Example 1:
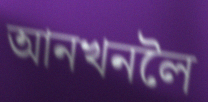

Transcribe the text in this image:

আনখনলৈ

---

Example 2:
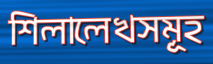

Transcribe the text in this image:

শিলালেখসমূহ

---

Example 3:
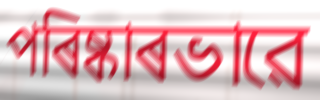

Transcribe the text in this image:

পৰিষ্কাৰভাৱে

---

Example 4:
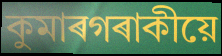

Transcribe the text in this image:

কুমাৰগৰাকীয়ে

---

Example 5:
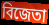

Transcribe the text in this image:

বিজেতা